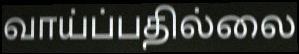
வாய்ப்பதில்லை